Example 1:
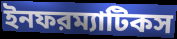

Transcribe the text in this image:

ইনফরম্যাটিকস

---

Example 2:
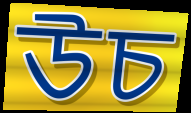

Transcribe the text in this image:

উচ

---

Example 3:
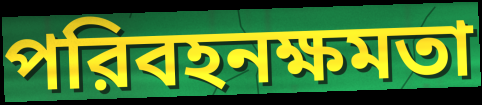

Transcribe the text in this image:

পরিবহনক্ষমতা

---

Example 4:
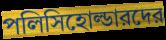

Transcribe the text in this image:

পলিসিহোল্ডারদের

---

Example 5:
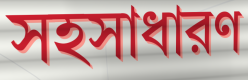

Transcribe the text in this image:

সহসাধারণ